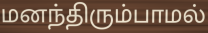
மனந்திரும்பாமல்